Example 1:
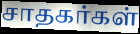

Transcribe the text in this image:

சாதகர்கள்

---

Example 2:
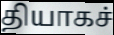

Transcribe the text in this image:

தியாகச்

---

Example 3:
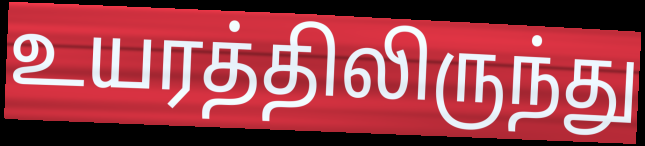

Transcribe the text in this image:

உயரத்திலிருந்து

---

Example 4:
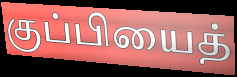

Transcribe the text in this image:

குப்பியைத்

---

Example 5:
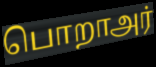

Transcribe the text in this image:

பொறாஅர்